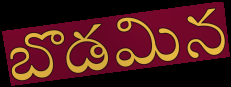
బొడమిన